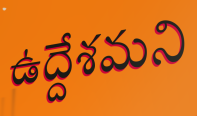
ఉద్దేశమని